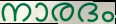
നാരദം